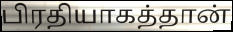
பிரதியாகத்தான்